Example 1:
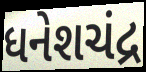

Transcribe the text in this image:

ધનેશચંદ્ર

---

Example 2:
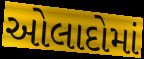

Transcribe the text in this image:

ઓલાદોમાં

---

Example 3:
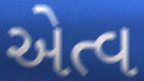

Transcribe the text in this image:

એત્વ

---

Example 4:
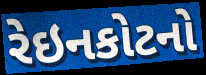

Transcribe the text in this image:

રેઇનકોટનો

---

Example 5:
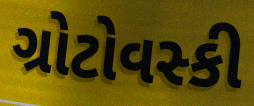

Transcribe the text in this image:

ગ્રોટોવસ્કી